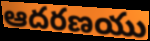
ఆదరణయు